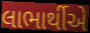
લાભાર્થીએ